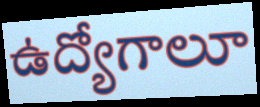
ఉద్యోగాలూ